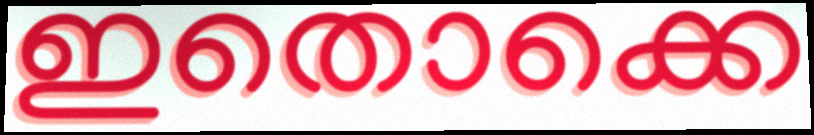
ഇതൊക്കെ